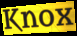
Knox